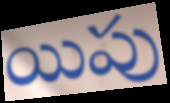
యిపు